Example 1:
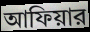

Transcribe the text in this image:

আফিয়ার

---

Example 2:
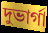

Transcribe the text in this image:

দুভার্গা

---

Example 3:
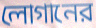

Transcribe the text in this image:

লোগানের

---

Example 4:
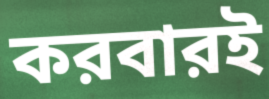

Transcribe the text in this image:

করবারই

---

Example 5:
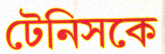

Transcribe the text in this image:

টেনিসকে